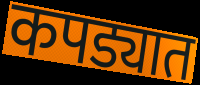
कपड्यात